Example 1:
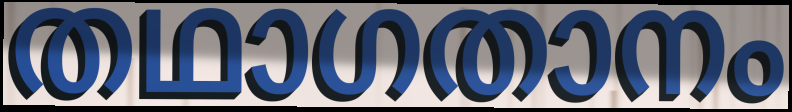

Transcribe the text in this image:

തഥാഗതാനം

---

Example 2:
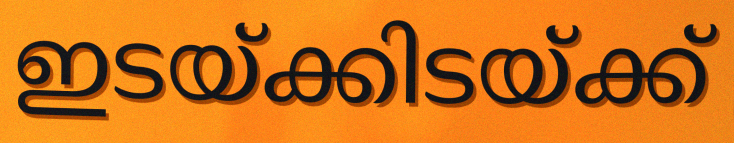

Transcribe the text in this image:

ഇടയ്ക്കിടയ്ക്ക്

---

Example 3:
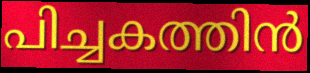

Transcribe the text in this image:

പിച്ചകത്തിൻ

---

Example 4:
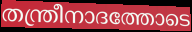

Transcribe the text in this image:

തന്ത്രീനാദത്തോടെ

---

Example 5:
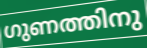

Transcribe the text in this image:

ഗുണത്തിനു